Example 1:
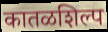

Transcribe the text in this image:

कातळशिल्प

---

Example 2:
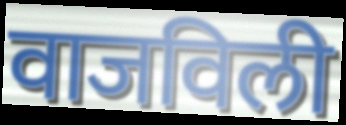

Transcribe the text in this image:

वाजविली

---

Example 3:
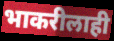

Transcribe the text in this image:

भाकरीलाही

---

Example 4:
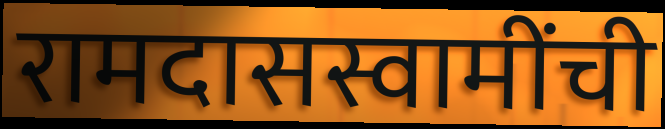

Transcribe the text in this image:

रामदासस्वामींची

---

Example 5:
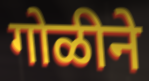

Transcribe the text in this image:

गोळीने